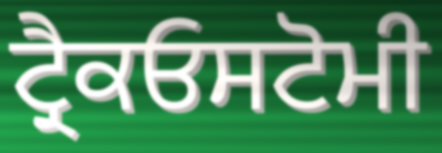
ਟ੍ਰੈਕਓਸਟੋਮੀ